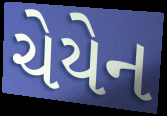
ચેયેન